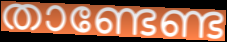
താണ്ടേണ്ട